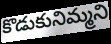
కొడుకునిమ్మని